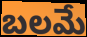
బలమే